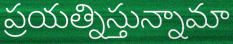
ప్రయత్నిస్తున్నామా